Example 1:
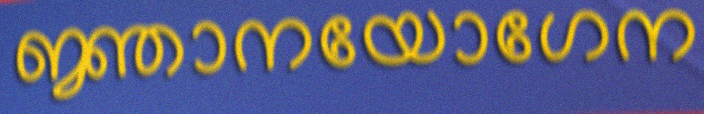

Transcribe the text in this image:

ജ്ഞാനയോഗേന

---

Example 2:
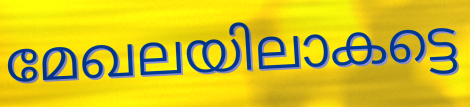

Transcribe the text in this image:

മേഖലയിലാകട്ടെ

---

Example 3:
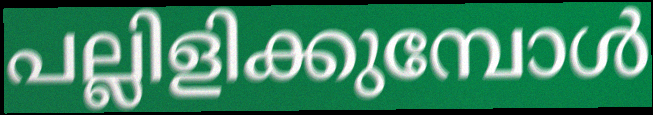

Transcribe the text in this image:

പല്ലിളിക്കുമ്പോൾ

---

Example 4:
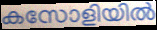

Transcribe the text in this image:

കസോളിയിൽ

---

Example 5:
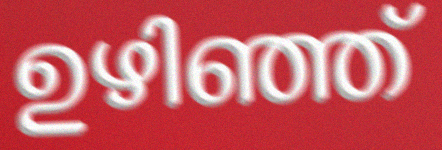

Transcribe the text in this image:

ഉഴിഞ്ഞ്